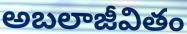
అబలాజీవితం